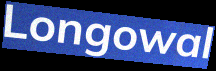
Longowal